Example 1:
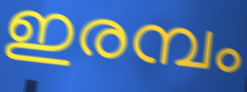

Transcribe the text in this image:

ഇരമ്പം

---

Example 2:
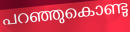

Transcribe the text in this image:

പറഞ്ഞുകൊണ്ടു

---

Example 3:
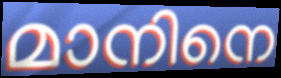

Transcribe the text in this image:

മാനിനെ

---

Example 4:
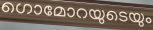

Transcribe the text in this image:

ഗൊമോറയുടെയും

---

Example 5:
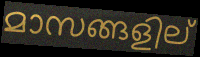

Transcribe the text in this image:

മാസങ്ങളില്